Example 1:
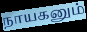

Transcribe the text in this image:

நாயகனும்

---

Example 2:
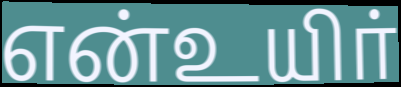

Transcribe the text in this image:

என்உயிர்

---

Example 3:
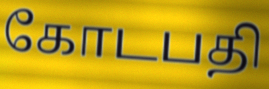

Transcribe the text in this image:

கோடபதி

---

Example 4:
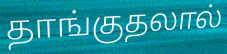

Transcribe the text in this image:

தாங்குதலால்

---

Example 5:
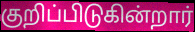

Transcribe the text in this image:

குறிப்பிடுகின்றார்